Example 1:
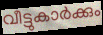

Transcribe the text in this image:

വീട്ടുകാർക്കും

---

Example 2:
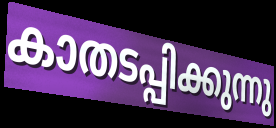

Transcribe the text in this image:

കാതടപ്പിക്കുന്നു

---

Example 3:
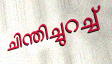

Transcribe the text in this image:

ചിന്തിച്ചുറച്ച്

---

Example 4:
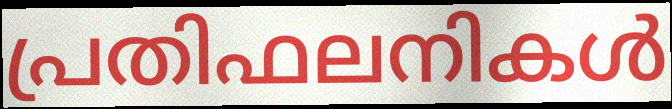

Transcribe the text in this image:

പ്രതിഫലനികൾ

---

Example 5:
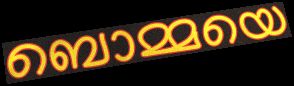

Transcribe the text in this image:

ബൊമ്മയെ